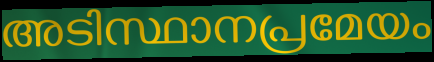
അടിസ്ഥാനപ്രമേയം